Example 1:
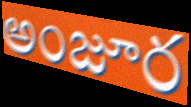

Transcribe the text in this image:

అంజూర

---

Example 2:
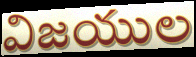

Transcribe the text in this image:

విజయుల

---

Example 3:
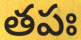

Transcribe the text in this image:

తపః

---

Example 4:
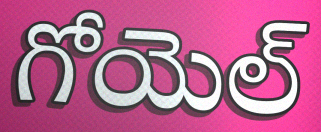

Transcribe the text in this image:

గోయెల్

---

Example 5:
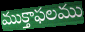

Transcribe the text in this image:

ముక్తాఫలము